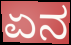
ಏನ